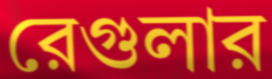
রেগুলার